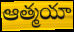
ఆత్మయా